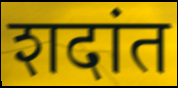
शदांत